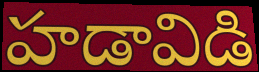
హడావిడి